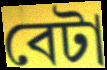
বেটা